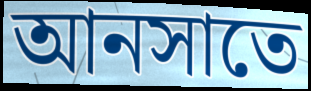
আনসাতে